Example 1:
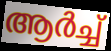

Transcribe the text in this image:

ആർച്ച്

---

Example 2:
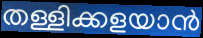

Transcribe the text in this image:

തള്ളിക്കളയാൻ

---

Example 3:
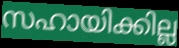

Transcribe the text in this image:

സഹായിക്കില്ല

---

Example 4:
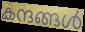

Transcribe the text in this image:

കന്ദങ്ങൾ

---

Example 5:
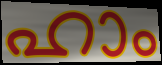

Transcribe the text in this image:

ഹാം